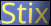
Stix